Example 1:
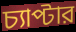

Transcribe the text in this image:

চ্যাপ্টার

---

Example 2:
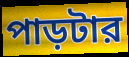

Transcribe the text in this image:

পাড়টার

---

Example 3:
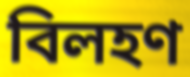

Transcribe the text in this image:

বিলহণ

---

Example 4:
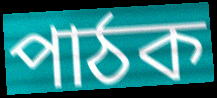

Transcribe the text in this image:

পাঠক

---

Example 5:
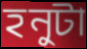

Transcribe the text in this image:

হনুটা